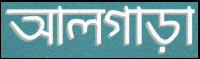
আলগাড়া